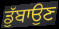
ਡੁੱਬਾਉਣ